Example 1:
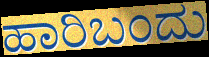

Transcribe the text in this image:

ಹಾರಿಬಂದು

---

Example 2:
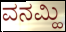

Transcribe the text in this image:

ವನಮ್ಹಿ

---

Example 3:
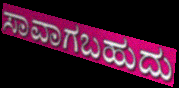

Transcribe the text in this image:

ಸಾವಾಗಬಹುದು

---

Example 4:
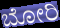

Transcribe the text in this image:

ಬೋರಿ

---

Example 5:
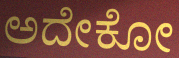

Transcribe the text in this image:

ಅದೇಕೋ